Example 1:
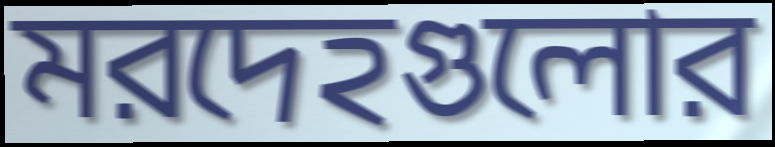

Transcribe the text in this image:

মরদেহগুলোর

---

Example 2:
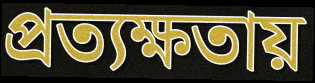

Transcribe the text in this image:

প্রত্যক্ষতায়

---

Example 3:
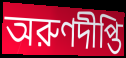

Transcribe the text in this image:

অরুণদীপ্তি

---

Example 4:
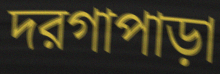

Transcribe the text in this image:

দরগাপাড়া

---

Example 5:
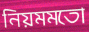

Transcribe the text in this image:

নিয়মমতো